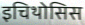
इचिथोसिस